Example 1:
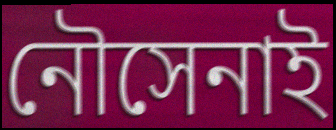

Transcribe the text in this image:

নৌসেনাই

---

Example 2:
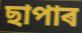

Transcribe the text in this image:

ছাপাৰ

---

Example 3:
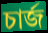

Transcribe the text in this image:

চাৰ্জ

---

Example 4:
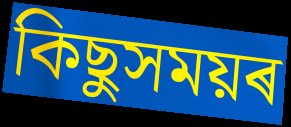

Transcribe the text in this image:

কিছুসময়ৰ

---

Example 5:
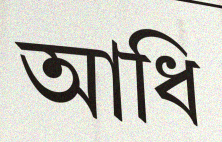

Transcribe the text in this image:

আধি